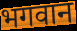
भगवान